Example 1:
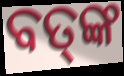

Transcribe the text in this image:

ବତ୍‍ଙ୍କ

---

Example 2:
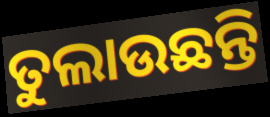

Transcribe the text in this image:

ତୁଲାଉଛନ୍ତି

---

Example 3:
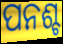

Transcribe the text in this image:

ପନଶ୍ଚ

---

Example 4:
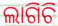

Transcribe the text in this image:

ଲାଗିଚି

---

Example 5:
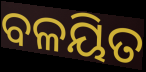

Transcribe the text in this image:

ବଳୟିତ